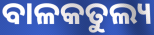
ବାଳକତୁଲ୍ୟ